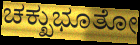
ಚಕ್ಖುಭೂತೋ